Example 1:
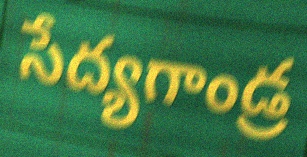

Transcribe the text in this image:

సేద్యగాండ్ర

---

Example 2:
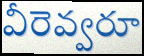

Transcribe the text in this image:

వీరెవ్వరూ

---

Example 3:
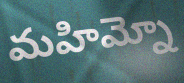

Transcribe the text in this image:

మహిమ్నో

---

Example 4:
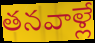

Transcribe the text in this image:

తనవాళ్లే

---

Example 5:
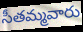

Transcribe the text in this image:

సీతమ్మవారు